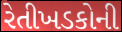
રેતીખડકોની